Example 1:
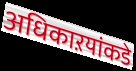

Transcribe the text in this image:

अधिकाऱयांकडे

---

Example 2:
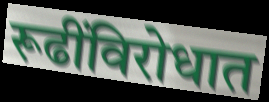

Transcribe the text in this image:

रूढींविरोधात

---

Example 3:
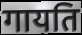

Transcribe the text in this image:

गायति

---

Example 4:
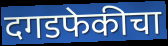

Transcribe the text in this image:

दगडफेकीचा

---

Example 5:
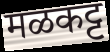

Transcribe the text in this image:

मळकट्ट